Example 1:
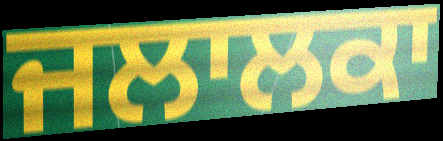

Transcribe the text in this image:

ਜਲਾਲਕਾ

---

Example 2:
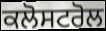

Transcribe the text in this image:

ਕਲੋਸਟਰੋਲ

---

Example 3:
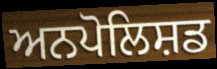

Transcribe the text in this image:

ਅਨਪੋਲਿਸ਼ਡ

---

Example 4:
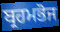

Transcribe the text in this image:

ਬ੍ਰਹਮਭੋਜ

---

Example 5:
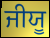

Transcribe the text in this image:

ਜੀਯੂ